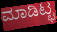
ಮಾಡಿಟ್ಟ